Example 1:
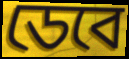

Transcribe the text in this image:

ডেবে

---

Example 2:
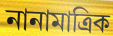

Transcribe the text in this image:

নানামাত্রিক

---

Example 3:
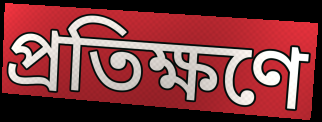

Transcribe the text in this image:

প্রতিক্ষণে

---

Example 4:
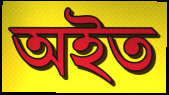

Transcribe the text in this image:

অইত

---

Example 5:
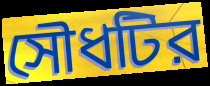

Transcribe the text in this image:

সৌধটির